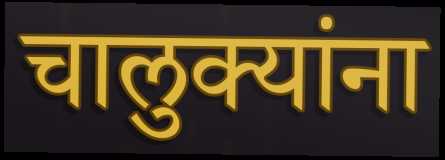
चालुक्यांना